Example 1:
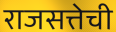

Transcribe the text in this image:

राजसत्तेची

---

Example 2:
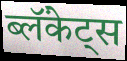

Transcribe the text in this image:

ब्लॅंकेट्स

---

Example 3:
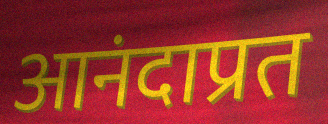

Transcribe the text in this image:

आनंदाप्रत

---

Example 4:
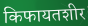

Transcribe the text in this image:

किफायतशीर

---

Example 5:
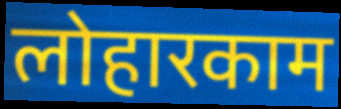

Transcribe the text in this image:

लोहारकाम